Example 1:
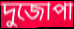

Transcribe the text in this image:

দুজোপা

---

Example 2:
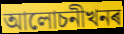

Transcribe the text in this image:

আলোচনীখনৰ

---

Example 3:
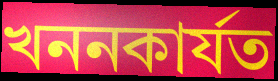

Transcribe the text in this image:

খননকাৰ্যত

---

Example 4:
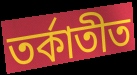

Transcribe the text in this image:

তৰ্কাতীত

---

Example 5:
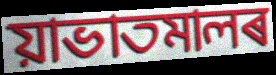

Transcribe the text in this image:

য়াভাতমালৰ